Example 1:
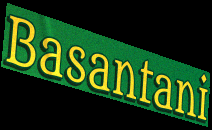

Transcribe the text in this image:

Basantani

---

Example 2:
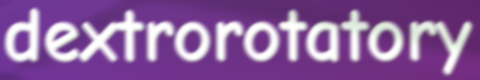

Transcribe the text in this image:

dextrorotatory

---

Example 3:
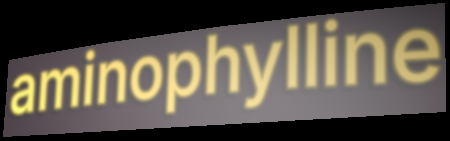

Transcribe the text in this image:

aminophylline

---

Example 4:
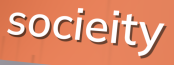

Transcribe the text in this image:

socieity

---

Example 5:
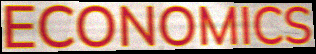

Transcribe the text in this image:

ECONOMICS